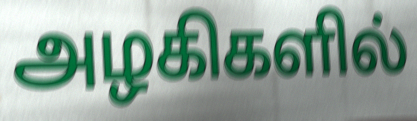
அழகிகளில்